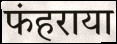
फंहराया